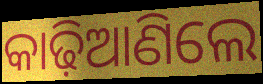
କାଢ଼ିଆଣିଲେ